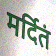
मर्दितं